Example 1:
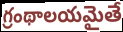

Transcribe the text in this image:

గ్రంథాలయమైతే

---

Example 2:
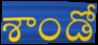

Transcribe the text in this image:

శాండో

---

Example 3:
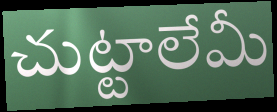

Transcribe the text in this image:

చుట్టాలేమీ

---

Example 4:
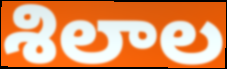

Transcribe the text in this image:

శిలాల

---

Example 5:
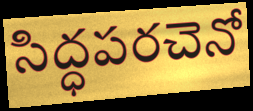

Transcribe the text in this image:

సిద్ధపరచెనో